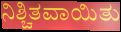
ನಿಶ್ಚಿತವಾಯಿತು